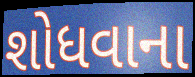
શોધવાના